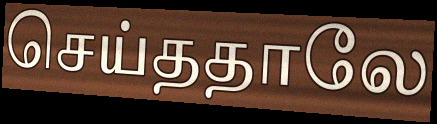
செய்ததாலே